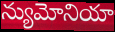
న్యుమోనియా